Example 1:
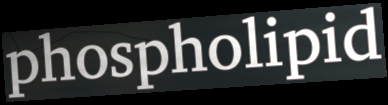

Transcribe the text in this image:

phospholipid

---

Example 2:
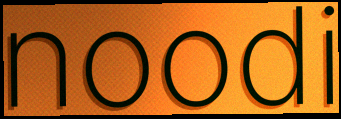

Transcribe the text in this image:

noodi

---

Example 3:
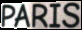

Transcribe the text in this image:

PARIS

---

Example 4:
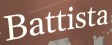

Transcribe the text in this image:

Battista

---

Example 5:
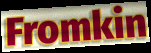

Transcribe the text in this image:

Fromkin